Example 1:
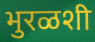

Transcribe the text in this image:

भुरळशी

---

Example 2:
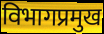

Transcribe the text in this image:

विभागप्रमुख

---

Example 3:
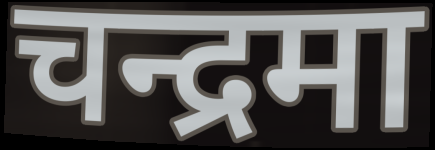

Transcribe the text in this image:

चन्द्रमा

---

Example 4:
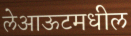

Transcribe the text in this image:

लेआऊटमधील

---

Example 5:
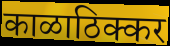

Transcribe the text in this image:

काळाठिक्कर